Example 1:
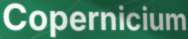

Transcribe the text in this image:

Copernicium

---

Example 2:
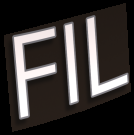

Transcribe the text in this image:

FIL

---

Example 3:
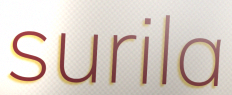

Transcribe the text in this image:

surila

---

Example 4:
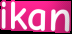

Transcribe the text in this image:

ikan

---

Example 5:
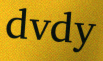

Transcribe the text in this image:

dvdy